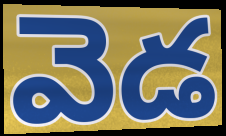
వెడ